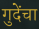
गुदेंचा